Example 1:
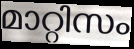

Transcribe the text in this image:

മാറ്റിസം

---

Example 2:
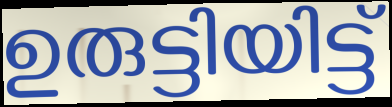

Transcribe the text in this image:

ഉരുട്ടിയിട്ട്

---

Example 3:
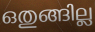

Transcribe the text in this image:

ഒതുങ്ങില്ല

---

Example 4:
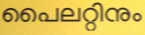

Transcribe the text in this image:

പൈലറ്റിനും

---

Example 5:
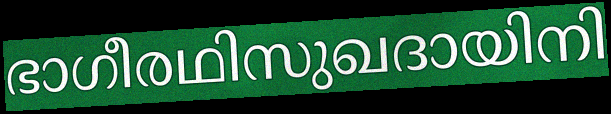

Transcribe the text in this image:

ഭാഗീരഥിസുഖദായിനി